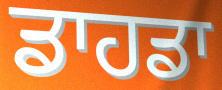
ਡਾਹਡਾ